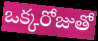
ఒక్కరోజుతో